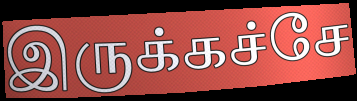
இருக்கச்சே